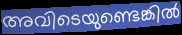
അവിടെയുണ്ടെങ്കിൽ